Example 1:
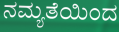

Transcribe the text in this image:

ನಮ್ಯತೆಯಿಂದ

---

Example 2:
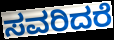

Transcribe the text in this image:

ಸವರಿದರೆ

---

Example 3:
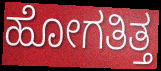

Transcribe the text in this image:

ಹೋಗತಿತ್ತ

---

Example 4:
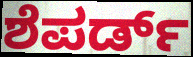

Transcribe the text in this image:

ಶೆಪರ್ಡ್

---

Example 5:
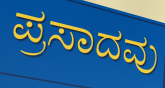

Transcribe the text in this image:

ಪ್ರಸಾದವು